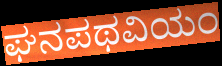
ಘನಪಥವಿಯಂ